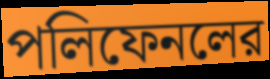
পলিফেনলের